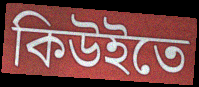
কিউইতে